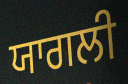
ਯਾਗਲੀ